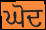
ਘੋਦ